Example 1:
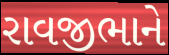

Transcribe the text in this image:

રાવજીભાને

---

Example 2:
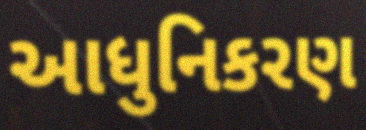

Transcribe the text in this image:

આધુનિકરણ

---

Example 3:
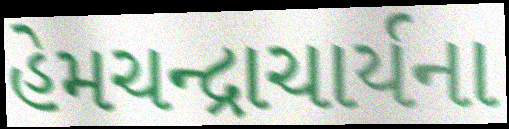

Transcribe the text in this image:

હેમચન્દ્રાચાર્યના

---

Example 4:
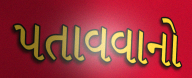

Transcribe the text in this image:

પતાવવાનો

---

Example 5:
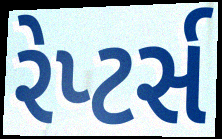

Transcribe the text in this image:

રેપ્ટર્સ